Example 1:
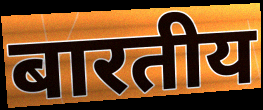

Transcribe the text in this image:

बारतीय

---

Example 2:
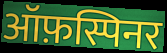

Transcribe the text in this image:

ऑफ़स्पिनर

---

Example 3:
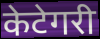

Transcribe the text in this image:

केटेगरी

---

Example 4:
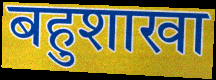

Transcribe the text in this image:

बहुशाखा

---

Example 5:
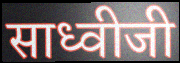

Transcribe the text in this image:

साध्वीजी